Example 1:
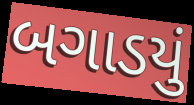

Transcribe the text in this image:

બગાડયું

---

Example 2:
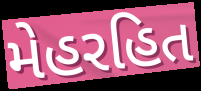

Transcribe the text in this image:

મેહરહિત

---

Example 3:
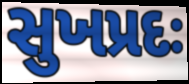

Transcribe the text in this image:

સુખપ્રદઃ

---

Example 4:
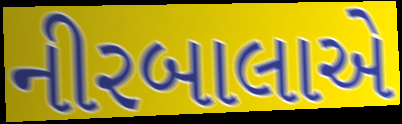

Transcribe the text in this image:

નીરબાલાએ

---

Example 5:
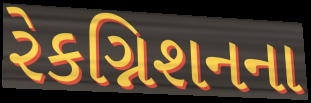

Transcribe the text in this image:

રેકગ્નિશનના